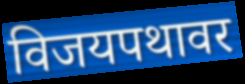
विजयपथावर